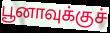
பூனாவுக்குச்